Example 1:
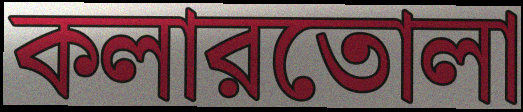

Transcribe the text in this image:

কলারতোলা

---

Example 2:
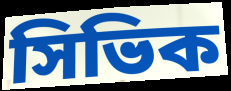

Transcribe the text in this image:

সিভিক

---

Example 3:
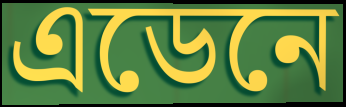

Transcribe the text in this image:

এডেনে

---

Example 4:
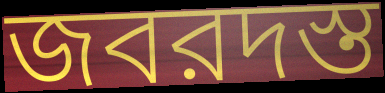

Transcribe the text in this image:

জবরদস্ত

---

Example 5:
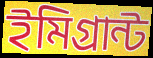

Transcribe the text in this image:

ইমিগ্রান্ট